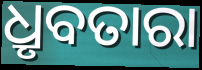
ଧ୍ରୃବତାରା